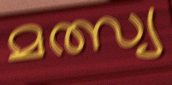
മത്സ്യ